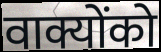
वाक्योंको